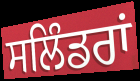
ਸਲਿੰਡਰਾਂ